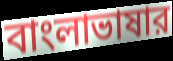
বাংলাভাষার